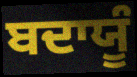
ਬਦਾਯੂੰ